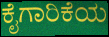
ಕೈಗಾರಿಕೆಯ